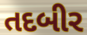
તદબીર